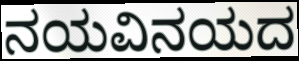
ನಯವಿನಯದ